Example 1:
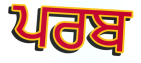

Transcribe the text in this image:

ਪਰਬ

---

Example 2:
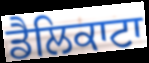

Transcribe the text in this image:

ਡੈਲਿਕਾਟਾ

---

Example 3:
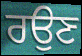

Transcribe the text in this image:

ਰਉਣ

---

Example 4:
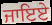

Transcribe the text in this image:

ਜਾਇਏ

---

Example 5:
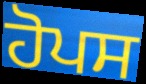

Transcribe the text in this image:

ਹੋਪਸ